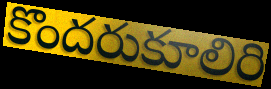
కొందరుకూలిరి